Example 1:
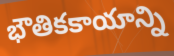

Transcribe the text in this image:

భౌతికకాయాన్ని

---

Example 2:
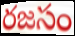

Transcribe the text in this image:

రజసం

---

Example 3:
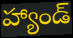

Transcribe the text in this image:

హ్యాండ్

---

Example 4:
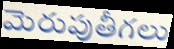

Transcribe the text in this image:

మెరుపుతీగలు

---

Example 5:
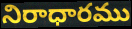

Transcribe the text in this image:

నిరాధారము